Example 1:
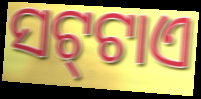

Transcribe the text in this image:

ସଟ୍‍ଟାଏ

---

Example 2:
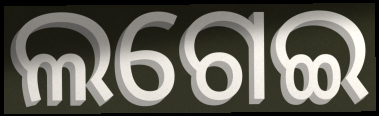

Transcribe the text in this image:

ଲଗେଇ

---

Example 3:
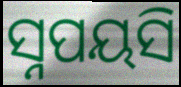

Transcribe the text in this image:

ସ୍ନପୟସି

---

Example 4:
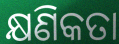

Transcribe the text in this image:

କ୍ଷଣିକତା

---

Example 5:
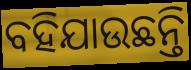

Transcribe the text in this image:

ବହିଯାଉଛନ୍ତି